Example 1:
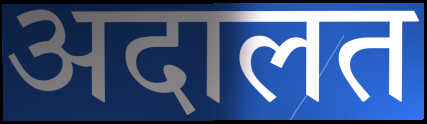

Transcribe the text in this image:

अदालत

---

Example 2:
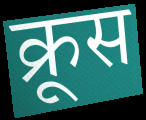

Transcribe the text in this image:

क्रूस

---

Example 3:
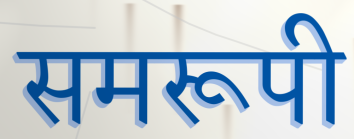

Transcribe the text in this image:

समरूपी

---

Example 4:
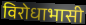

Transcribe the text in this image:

विरोधाभासी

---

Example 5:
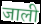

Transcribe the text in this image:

जाली